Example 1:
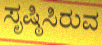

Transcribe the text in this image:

ಸೃಷ್ಠಿಸಿರುವ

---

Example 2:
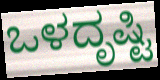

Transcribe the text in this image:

ಒಳದೃಷ್ಟಿ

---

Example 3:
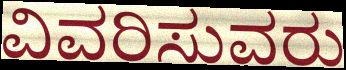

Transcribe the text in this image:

ವಿವರಿಸುವರು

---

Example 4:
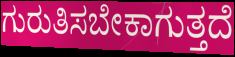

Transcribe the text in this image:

ಗುರುತಿಸಬೇಕಾಗುತ್ತದೆ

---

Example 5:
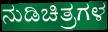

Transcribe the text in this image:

ನುಡಿಚಿತ್ರಗಳ